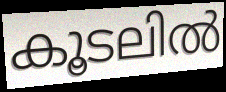
കൂടലിൽ